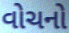
વોચનો